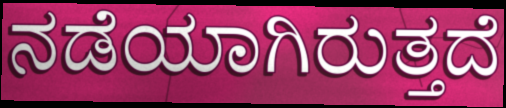
ನಡೆಯಾಗಿರುತ್ತದೆ